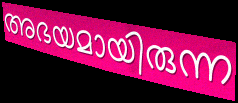
അഭയമായിരുന്ന